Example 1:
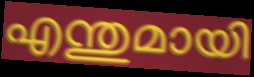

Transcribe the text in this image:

എന്തുമായി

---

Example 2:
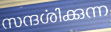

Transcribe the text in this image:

സന്ദൎശിക്കുന്ന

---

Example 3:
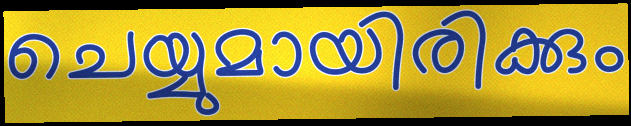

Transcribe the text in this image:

ചെയ്യുമായിരിക്കും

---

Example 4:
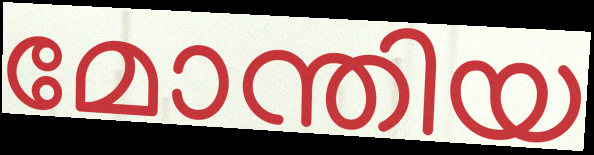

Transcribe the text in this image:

മോന്തിയ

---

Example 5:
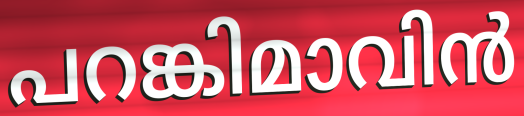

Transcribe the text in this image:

പറങ്കിമാവിൻ